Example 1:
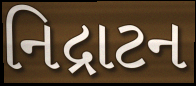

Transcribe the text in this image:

નિદ્રાટન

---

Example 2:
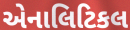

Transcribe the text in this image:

એનાલિટિકલ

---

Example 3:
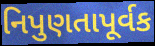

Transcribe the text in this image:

નિપુણતાપૂર્વક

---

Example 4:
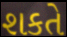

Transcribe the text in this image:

શકતે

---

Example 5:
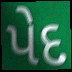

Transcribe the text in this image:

પેદ